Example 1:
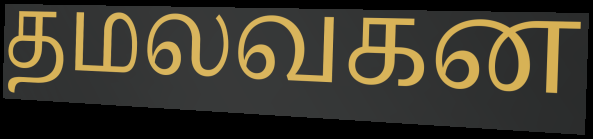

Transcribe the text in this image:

தமலவகன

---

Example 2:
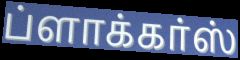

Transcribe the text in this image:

ப்ளாக்கர்ஸ்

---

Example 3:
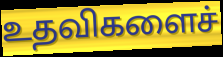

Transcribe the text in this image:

உதவிகளைச்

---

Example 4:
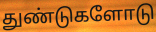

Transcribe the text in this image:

துண்டுகளோடு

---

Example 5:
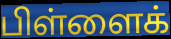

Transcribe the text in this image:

பிள்ளைக்